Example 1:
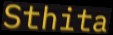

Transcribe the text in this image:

Sthita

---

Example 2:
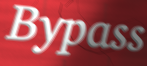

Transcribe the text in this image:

Bypass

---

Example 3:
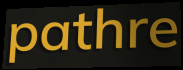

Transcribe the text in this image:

pathre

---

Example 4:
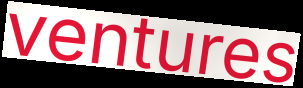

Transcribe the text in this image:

ventures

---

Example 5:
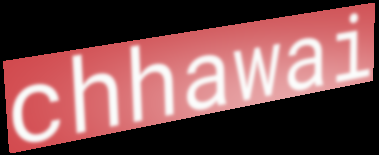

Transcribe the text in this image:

chhawai